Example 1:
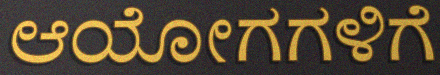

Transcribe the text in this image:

ಆಯೋಗಗಳಿಗೆ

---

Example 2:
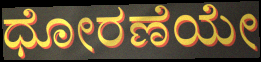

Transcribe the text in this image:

ಧೋರಣೆಯೇ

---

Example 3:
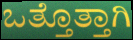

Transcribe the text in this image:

ಒತ್ತೊತ್ತಾಗಿ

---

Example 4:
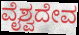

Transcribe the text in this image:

ವೈಶ್ವದೇವ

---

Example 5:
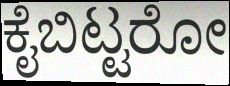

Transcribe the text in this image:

ಕೈಬಿಟ್ಟರೋ